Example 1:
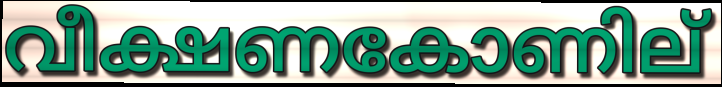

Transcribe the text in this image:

വീക്ഷണകോണില്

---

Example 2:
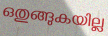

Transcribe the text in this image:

ഒതുങ്ങുകയില്ല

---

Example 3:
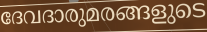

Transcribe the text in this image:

ദേവദാരുമരങ്ങളുടെ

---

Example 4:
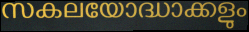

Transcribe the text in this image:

സകലയോദ്ധാക്കളും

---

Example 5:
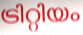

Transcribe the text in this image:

ട്രിറ്റിയം